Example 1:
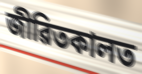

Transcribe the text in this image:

জীৱিতকালত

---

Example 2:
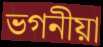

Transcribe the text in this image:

ভগনীয়া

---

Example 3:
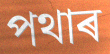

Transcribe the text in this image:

পথাৰ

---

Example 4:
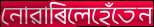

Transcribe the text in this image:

নোৱাৰিলেহেঁতেন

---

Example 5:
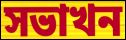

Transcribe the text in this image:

সভাখন